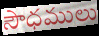
సౌధములు